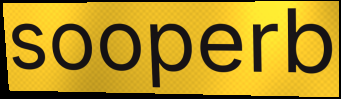
sooperb